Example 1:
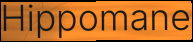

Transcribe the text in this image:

Hippomane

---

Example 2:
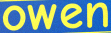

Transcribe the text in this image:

owen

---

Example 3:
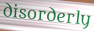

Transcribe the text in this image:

disorderly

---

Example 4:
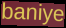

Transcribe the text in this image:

baniye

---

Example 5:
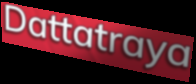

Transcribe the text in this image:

Dattatraya